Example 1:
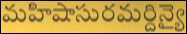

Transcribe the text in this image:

మహిషాసురమర్దిన్యై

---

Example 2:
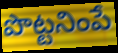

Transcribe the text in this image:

పొట్టనింపే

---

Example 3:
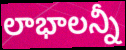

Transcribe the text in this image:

లాభాలన్నీ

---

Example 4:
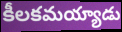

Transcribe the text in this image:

కీలకమయ్యాడు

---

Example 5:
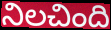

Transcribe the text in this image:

నిలచింది